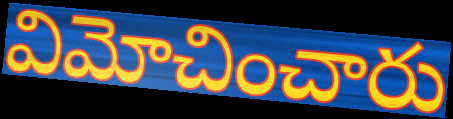
విమోచించారు